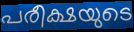
പരീക്ഷയുടെ